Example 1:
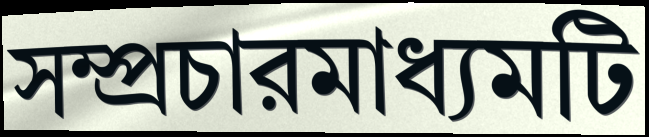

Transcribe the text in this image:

সম্প্রচারমাধ্যমটি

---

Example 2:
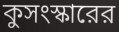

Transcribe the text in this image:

কুসংস্কারের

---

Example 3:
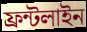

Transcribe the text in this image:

ফ্রন্টলাইন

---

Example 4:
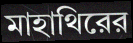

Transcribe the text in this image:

মাহাথিরের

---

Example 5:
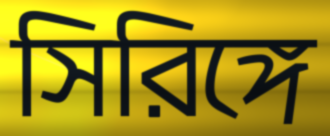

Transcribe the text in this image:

সিরিঙ্গে